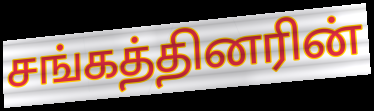
சங்கத்தினரின்